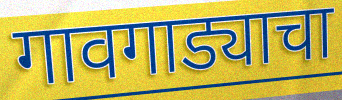
गावगाड्याचा